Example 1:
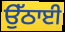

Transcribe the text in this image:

ਉੱਠਾਈ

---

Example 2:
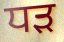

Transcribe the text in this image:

ਧੜ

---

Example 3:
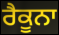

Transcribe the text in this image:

ਰੈਕੂਨਾ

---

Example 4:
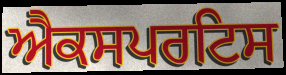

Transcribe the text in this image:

ਐਕਸਪਰਟਿਸ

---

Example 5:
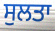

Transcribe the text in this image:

ਸੁਲਤਾ